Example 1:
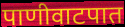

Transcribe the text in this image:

पाणीवाटपात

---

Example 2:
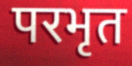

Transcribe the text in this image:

परभृत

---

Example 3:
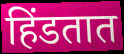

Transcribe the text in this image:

हिंडतात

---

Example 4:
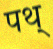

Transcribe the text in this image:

पथ्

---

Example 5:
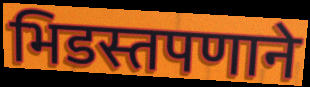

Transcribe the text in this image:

भिडस्तपणाने